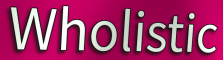
Wholistic